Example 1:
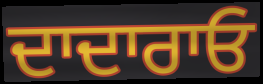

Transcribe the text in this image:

ਦਾਦਾਰਾਓ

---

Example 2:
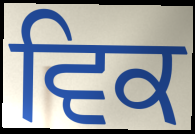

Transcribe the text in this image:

ਵਿਕ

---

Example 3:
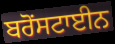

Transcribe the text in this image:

ਬਰੋਂਸਟਾਈਨ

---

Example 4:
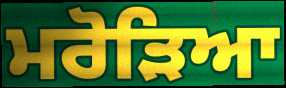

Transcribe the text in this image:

ਮਰੋੜਿਆ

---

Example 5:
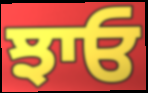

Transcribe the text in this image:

ਝਾਓ